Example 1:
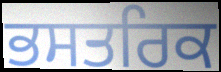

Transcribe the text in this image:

ਭਸਤਰਿਕ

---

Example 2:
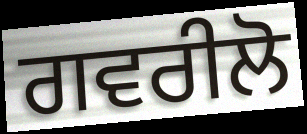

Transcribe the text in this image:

ਗਵਰੀਲੋ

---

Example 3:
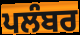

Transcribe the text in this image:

ਪਲੰਬਰ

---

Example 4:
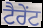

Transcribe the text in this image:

ਟੈਰੇਂਟ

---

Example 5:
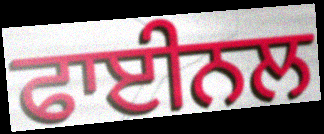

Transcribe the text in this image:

ਫਾਈਨਲ